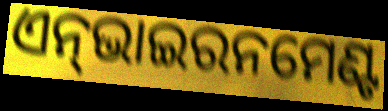
ଏନ୍‌ଭାଇରନମେଣ୍ଟ